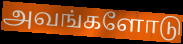
அவங்களோடு